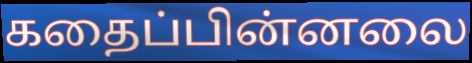
கதைப்பின்னலை